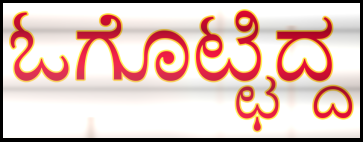
ಓಗೊಟ್ಟಿದ್ದ